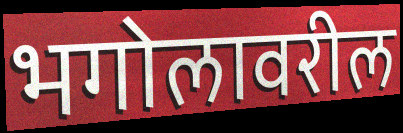
भगोलावरील